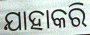
ଯାହାକରି